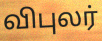
விபுலர்